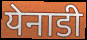
येनाडी